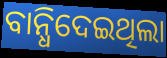
ବାନ୍ଧିଦେଇଥିଲା